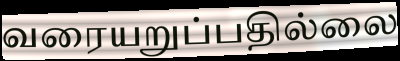
வரையறுப்பதில்லை